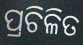
ପ୍ରଚିଳିତ